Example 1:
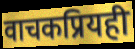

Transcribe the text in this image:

वाचकप्रियही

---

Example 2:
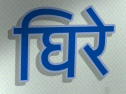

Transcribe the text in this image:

घिरे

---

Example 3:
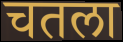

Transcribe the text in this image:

चतला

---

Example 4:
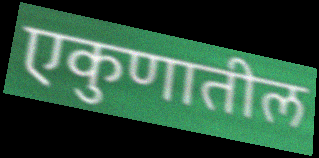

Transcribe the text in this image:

एकुणातील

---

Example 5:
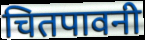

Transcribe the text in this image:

चितपावनी